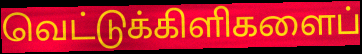
வெட்டுக்கிளிகளைப்